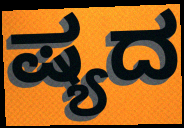
ಷ್ಯದ